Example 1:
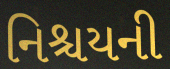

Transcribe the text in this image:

નિશ્ચયની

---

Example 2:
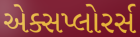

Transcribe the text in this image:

એક્સપ્લોરર્સ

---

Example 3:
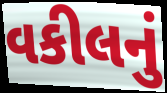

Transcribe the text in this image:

વકીલનું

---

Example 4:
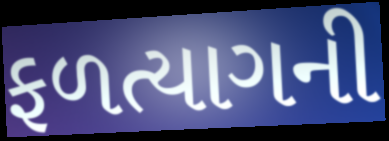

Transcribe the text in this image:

ફળત્યાગની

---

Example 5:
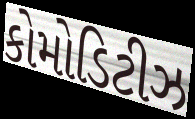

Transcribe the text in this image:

કોમોડિટીઝ